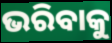
ଭରିବାକୁ